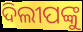
ଦିଲୀପଙ୍କୁ